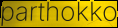
parthokko